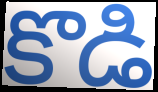
కొడి